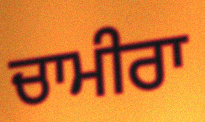
ਚਾਮੀਰਾ